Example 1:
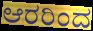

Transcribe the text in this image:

ಆರರಿಂದ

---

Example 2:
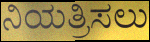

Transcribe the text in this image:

ನಿಯತ್ರಿಸಲು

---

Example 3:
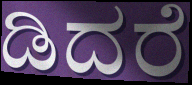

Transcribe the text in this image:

ಡಿದರೆ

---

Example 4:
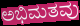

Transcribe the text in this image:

ಅಭಿಮತವು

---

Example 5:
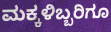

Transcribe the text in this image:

ಮಕ್ಕಳಿಬ್ಬರಿಗೂ